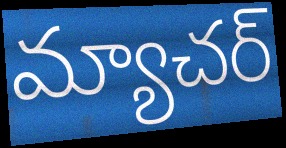
మ్యాచర్